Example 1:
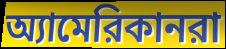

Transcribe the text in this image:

অ্যামেরিকানরা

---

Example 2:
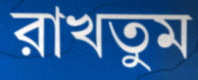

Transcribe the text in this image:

রাখতুম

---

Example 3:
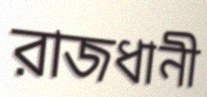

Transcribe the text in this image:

রাজধানী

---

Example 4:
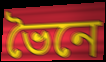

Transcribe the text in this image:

ভৈনে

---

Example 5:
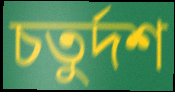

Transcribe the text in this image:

চতুর্দশ